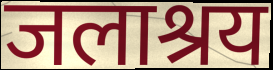
जलाश्रय